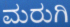
ಮರುಗಿ